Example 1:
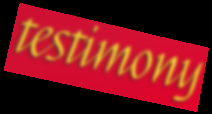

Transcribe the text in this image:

testimony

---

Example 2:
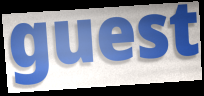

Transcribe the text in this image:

guest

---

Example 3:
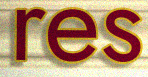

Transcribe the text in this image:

res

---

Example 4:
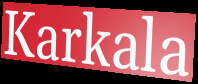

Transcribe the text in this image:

Karkala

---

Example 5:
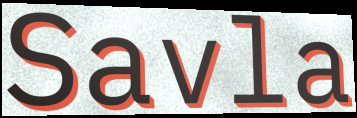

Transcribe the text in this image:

Savla